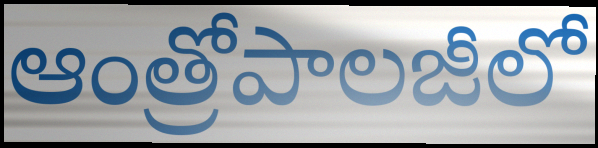
ఆంత్రోపాలజీలో